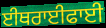
ਈਥਰਾਈਫਾਈ